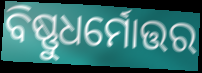
ବିଷ୍ଣୁଧର୍ମୋତ୍ତର